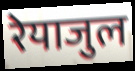
रेयाजुल